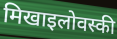
मिखाइलोवस्की